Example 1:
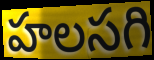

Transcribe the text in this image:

హలసగి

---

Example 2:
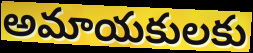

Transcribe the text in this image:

అమాయకులకు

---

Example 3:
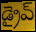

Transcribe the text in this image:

డ్రైవ్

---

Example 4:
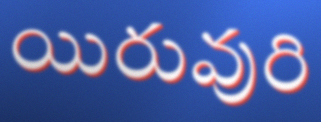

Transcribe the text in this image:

యిరువురి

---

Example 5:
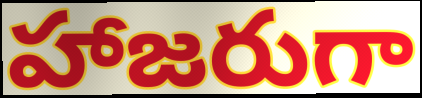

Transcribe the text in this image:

హాజరుగా